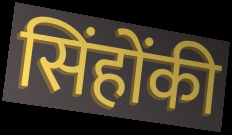
सिंहोंकी